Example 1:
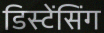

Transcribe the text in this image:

डिस्टेंसिंग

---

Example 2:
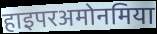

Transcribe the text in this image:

हाइपरअमोनमिया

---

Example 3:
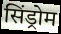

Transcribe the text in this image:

सिंड्रोम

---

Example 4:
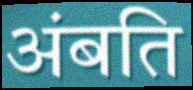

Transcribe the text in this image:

अंबति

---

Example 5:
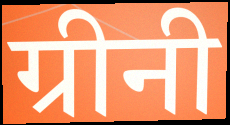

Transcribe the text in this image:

ग्रीनी